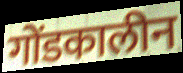
गोंडकालीन